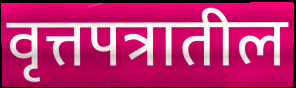
वृत्तपत्रातील